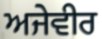
ਅਜੇਵੀਰ